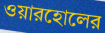
ওয়ারহোলের